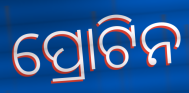
ପ୍ରୋଟିନ